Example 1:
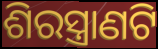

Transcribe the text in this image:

ଶିରସ୍ତ୍ରାଣଟି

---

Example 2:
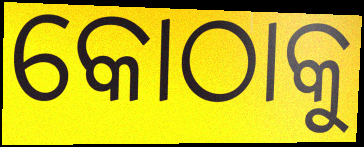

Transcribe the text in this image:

କୋଠାକୁ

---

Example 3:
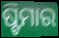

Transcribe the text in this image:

ଷ୍ଟିମାର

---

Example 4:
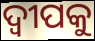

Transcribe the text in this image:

ଦ୍ୱୀପକୁ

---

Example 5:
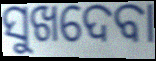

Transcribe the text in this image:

ସୁଖଦେବା